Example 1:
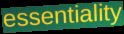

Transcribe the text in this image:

essentiality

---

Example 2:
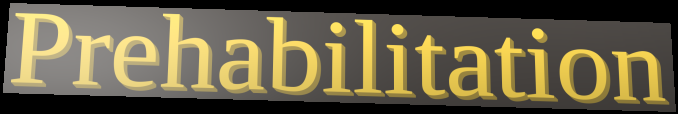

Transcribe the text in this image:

Prehabilitation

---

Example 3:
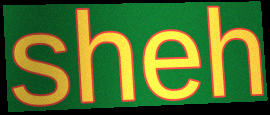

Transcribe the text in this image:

sheh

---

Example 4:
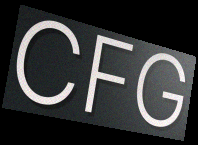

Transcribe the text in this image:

CFG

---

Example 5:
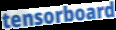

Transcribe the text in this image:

tensorboard